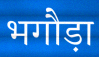
भगौड़ा